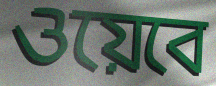
ওয়েবে